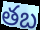
తబ